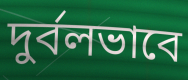
দুর্বলভাবে